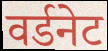
वर्डनेट